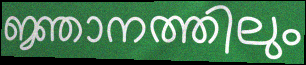
ജ്ഞാനത്തിലും